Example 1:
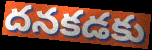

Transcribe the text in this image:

దనకడకు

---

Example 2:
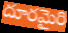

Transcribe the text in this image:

దూరమైరి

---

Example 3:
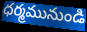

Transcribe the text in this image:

ధర్మమునుండి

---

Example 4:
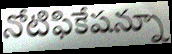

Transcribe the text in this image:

నోటిఫికేషన్నూ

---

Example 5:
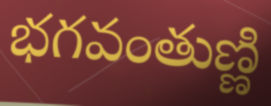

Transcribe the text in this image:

భగవంతుణ్ణి